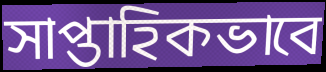
সাপ্তাহিকভাবে